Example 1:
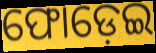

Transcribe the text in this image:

ଫୋଡ଼େଇ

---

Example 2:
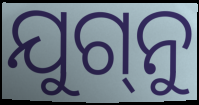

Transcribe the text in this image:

ଯୁଗ୍‌ନୁ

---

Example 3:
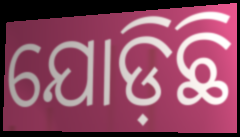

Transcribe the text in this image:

ଯୋଡ଼ିଛି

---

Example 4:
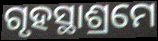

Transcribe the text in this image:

ଗୃହସ୍ଥାଶ୍ରମେ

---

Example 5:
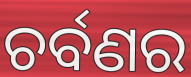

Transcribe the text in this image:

ଚର୍ବଣର